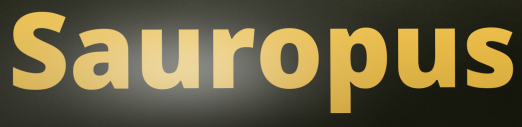
Sauropus